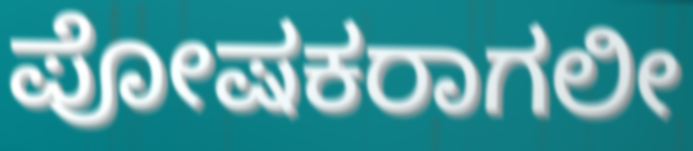
ಪೋಷಕರಾಗಲೀ